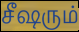
சீஷரும்